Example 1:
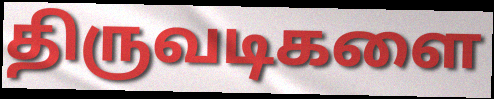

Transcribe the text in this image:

திருவடிகளை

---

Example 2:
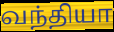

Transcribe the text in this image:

வந்தியா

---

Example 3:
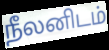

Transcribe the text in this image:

நீலனிடம்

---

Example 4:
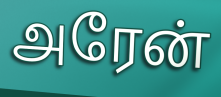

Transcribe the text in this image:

அரேன்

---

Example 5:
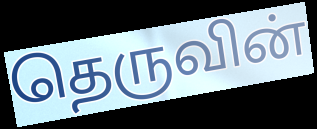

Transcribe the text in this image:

தெருவின்